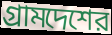
গ্রামদেশের